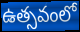
ఉత్సవంలో